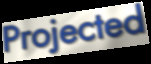
Projected